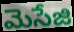
మెసేజి